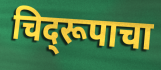
चिद्‌रूपाचा